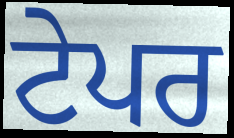
ਟੇਪਰ